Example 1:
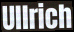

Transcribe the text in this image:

Ullrich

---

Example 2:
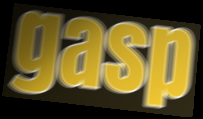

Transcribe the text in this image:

gasp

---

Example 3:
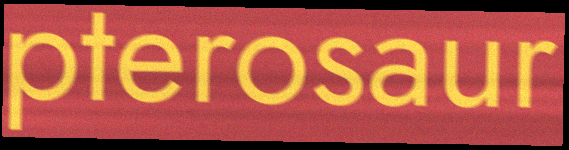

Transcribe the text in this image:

pterosaur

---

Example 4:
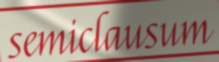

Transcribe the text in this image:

semiclausum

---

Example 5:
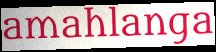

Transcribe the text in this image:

amahlanga